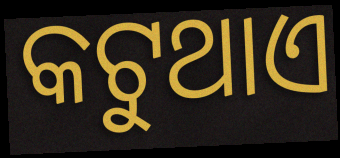
କଟୁଥାଏ